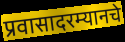
प्रवासादरम्यानचे